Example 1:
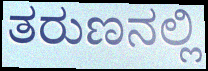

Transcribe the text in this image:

ತರುಣನಲ್ಲಿ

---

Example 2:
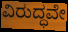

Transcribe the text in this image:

ವಿರುದ್ಧವೇ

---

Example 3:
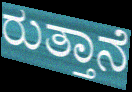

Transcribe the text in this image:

ರುತ್ತಾನೆ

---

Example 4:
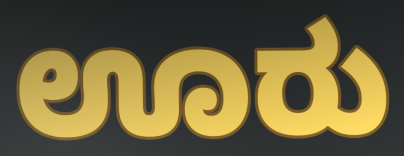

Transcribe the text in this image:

ಊರು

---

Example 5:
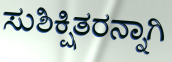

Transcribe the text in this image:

ಸುಶಿಕ್ಷಿತರನ್ನಾಗಿ